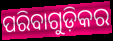
ପରିବାଗୁଡ଼ିକର